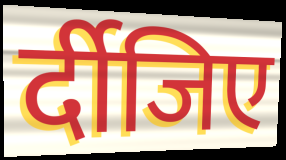
र्दीजिए